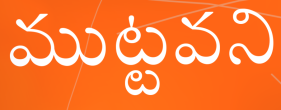
ముట్టవని